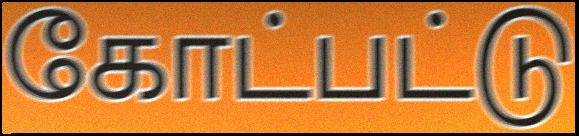
கோட்பட்டு